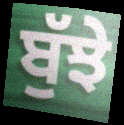
ਬੁੱਝੇ